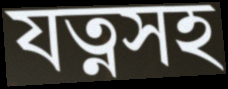
যত্নসহ